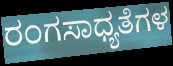
ರಂಗಸಾಧ್ಯತೆಗಳ